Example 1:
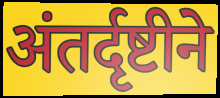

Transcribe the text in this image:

अंतर्दृष्टीने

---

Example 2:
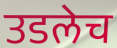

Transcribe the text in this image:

उडलेच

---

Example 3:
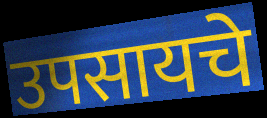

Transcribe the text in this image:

उपसायचे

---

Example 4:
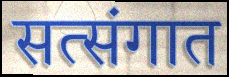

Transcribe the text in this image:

सत्संगात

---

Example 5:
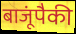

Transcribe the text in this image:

बाजूंपैकी